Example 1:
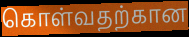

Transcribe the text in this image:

கொள்வதற்கான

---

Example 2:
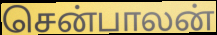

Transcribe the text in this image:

சென்பாலன்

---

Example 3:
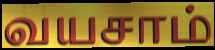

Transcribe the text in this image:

வயசாம்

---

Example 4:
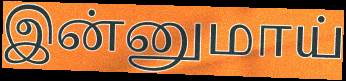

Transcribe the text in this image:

இன்னுமாய்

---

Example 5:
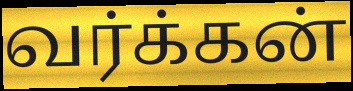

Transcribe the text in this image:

வர்க்கன்